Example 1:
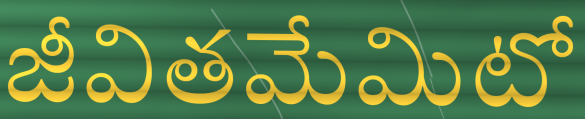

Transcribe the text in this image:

జీవితమేమిటో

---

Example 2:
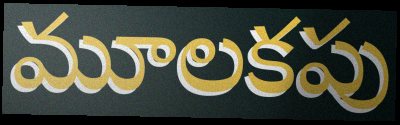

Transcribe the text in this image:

మూలకపు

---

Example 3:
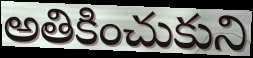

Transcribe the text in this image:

అతికించుకుని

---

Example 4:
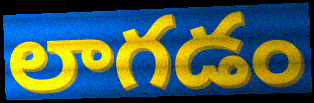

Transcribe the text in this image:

లాగడం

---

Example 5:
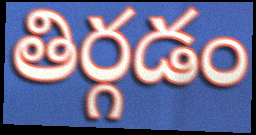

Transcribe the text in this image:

తిర్గడం